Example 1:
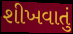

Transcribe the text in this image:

શીખવાતું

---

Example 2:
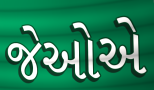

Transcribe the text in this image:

જેઓએ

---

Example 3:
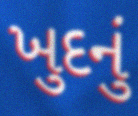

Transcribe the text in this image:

ખુદનું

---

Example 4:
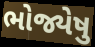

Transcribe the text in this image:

ભોજ્યેષુ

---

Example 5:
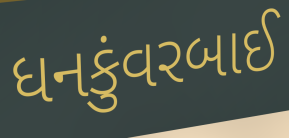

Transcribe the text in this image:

ધનકુંવરબાઈ